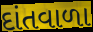
દાંતવાળા